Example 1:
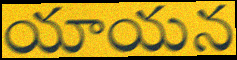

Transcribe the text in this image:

యాయన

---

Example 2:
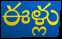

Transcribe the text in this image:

ఈళ్లు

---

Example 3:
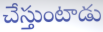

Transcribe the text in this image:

చేస్తుంటాడు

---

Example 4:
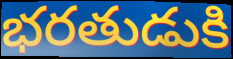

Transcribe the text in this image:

భరతుడుకి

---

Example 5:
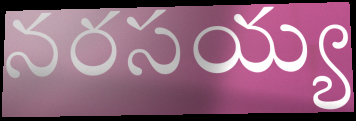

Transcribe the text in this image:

నరసయ్య